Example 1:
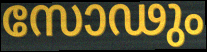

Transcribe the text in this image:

സോഢും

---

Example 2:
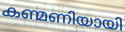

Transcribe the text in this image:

കണ്മണിയായി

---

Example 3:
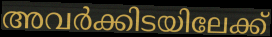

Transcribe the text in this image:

അവർക്കിടയിലേക്ക്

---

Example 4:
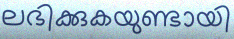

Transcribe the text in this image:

ലഭിക്കുകയുണ്ടായി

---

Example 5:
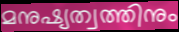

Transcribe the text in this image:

മനുഷ്യത്വത്തിനും